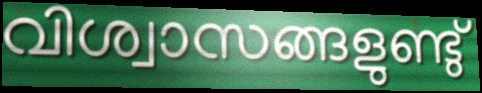
വിശ്വാസങ്ങളുണ്ടു്